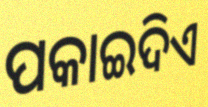
ପକାଇଦିଏ